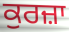
ਕੁਰਜ਼ਾ